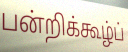
பன்றிக்கூழ்ப்